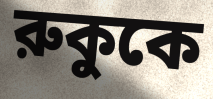
রুকুকে